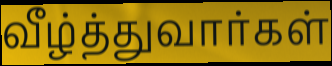
வீழ்த்துவார்கள்